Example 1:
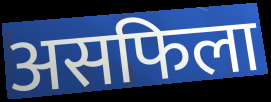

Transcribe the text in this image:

असफिला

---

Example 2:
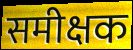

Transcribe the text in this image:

समीक्षक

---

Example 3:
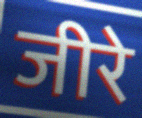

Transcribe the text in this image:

जीरे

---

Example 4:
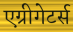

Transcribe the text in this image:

एग्रीगेटर्स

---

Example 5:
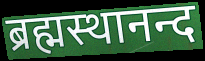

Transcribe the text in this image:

ब्रह्मस्थानन्द